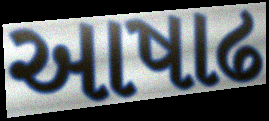
આષાઢ